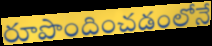
రూపొందించడంలోనే